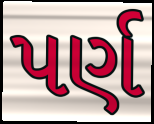
પર્ણ